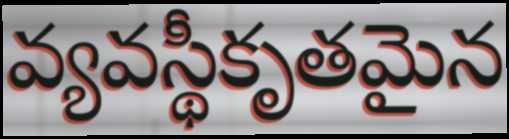
వ్యవస్థీకృతమైన